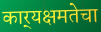
कार्यक्षमतेचा